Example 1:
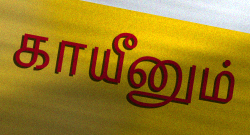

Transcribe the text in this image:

காயீனும்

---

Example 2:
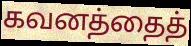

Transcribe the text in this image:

கவனத்தைத்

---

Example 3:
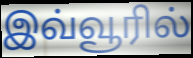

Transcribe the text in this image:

இவ்வூரில்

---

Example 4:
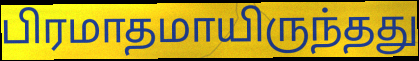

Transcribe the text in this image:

பிரமாதமாயிருந்தது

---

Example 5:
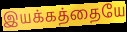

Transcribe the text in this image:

இயக்கத்தையே